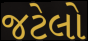
જટેલો